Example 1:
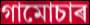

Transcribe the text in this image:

গামোচাৰ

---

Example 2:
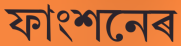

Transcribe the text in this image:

ফাংশনেৰ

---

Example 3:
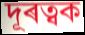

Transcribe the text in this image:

দূৰত্বক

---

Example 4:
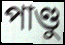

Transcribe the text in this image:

পাণ্ডু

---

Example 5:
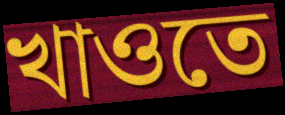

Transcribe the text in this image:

খাওতে